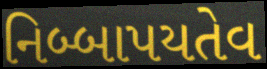
નિબ્બાપયતેવ